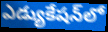
ఎడ్యుకేషన్‌లో